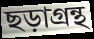
ছড়াগ্রন্থ